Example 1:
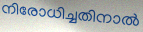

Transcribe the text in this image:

നിരോധിച്ചതിനാൽ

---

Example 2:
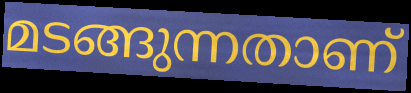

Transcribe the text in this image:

മടങ്ങുന്നതാണ്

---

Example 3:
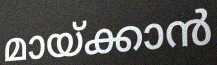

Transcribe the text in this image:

മായ്ക്കാൻ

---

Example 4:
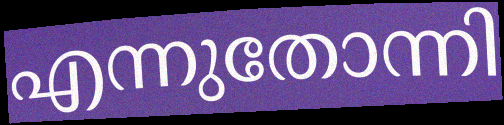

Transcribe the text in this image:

എന്നുതോന്നി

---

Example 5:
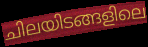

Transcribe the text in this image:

ചിലയിടങ്ങളിലെ